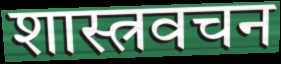
शास्त्रवचन